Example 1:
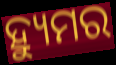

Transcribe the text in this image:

ହ୍ୟୁମର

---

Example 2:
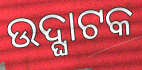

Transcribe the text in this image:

ଉଦ୍ଘାଟକ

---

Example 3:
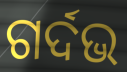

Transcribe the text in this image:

ଗର୍ଦଭ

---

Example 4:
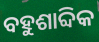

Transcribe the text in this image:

ବହୁଶାବ୍ଦିକ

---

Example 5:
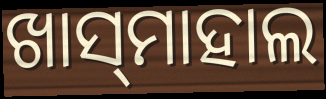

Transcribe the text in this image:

ଖାସ୍‌ମାହାଲ